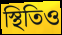
স্থিতিও